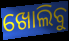
ଖୋଲିବୁ